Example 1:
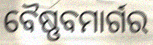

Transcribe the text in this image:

ବୈଷ୍ଣବମାର୍ଗର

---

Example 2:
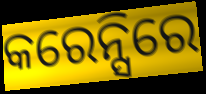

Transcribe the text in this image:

କରେନ୍ସିରେ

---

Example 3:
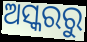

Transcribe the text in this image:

ଅସ୍କରରୁ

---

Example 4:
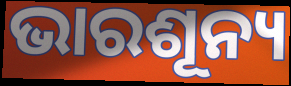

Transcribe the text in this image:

ଭାରଶୂନ୍ୟ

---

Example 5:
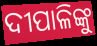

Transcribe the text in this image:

ଦୀପାଳିଙ୍କୁ